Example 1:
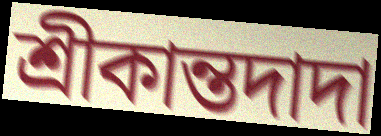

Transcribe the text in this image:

শ্রীকান্তদাদা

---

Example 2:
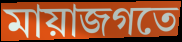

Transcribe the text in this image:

মায়াজগতে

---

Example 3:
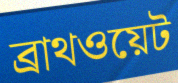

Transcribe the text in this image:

ব্রাথওয়েট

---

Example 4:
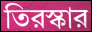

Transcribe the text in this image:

তিরস্কার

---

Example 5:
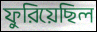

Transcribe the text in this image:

ফুরিয়েছিল